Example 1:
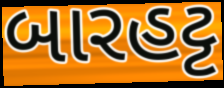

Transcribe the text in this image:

બારહટ્ટ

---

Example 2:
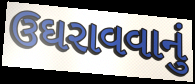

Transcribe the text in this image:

ઉઘરાવવાનું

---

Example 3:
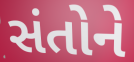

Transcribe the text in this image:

સંતોને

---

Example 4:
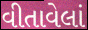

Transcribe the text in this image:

વીતાવેલાં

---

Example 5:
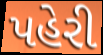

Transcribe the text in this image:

પહેરી